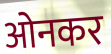
ओनकर